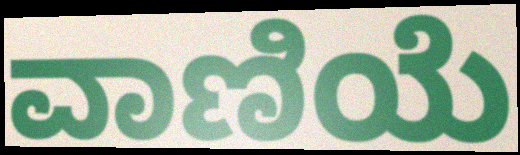
ವಾಣಿಯೆ